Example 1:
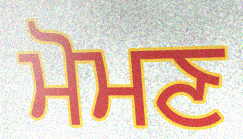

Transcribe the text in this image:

ਮੋਮਣ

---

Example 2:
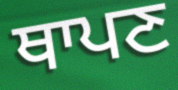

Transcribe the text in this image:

ਥਾਪਣ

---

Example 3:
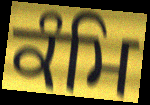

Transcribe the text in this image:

ਕੰਮਿ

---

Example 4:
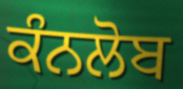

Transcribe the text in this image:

ਕੰਨਲੋਬ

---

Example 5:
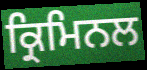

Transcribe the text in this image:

ਕ੍ਰਿਮਿਨਲ